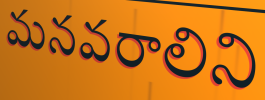
మనవరాలిని